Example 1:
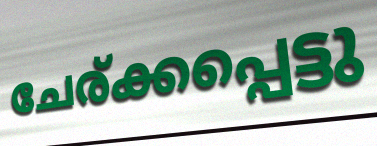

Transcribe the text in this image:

ചേര്ക്കപ്പെട്ടു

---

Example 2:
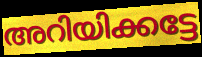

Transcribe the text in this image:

അറിയിക്കട്ടേ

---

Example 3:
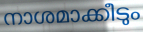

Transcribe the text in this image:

നാശമാക്കീടും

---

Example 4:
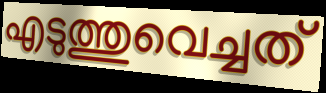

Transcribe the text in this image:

എടുത്തുവെച്ചത്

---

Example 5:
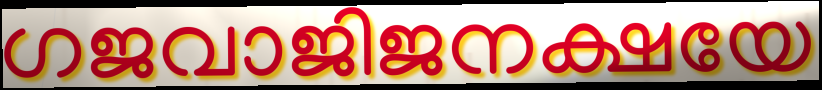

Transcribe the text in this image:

ഗജവാജിജനക്ഷയേ